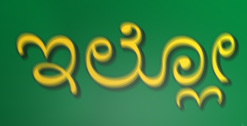
ಇಲ್ಲೋ